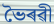
ভৈৰৱী